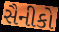
સૈનીકો